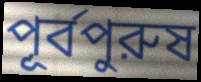
পূৰ্বপুৰুষ